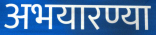
अभयारण्या